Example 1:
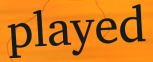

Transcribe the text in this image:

played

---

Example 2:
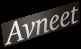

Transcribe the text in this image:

Avneet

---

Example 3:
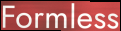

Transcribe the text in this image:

Formless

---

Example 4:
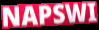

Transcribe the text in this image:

NAPSWI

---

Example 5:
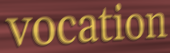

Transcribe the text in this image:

vocation